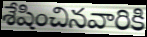
శేషించినవారికి